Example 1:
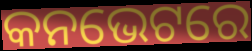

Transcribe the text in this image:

କନଭେଟରେ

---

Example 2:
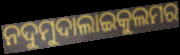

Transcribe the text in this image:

ନଦୁମୁଦାଲାଇକୁଲମର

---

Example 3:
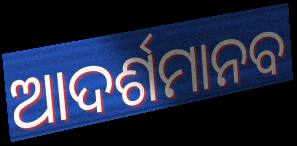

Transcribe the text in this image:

ଆଦର୍ଶମାନବ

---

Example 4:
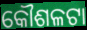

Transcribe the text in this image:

କୌଶଳଟା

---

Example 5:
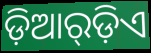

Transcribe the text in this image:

ଡ଼ିଆର୍‌ଡ଼ିଏ